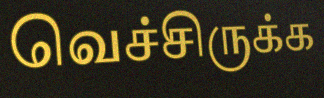
வெச்சிருக்க